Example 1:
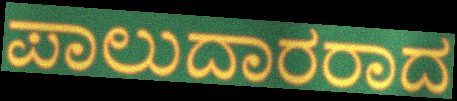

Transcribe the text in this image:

ಪಾಲುದಾರರಾದ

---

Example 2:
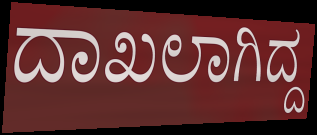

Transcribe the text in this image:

ದಾಖಲಾಗಿದ್ದ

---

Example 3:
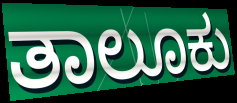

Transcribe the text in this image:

ತಾಲೂಕು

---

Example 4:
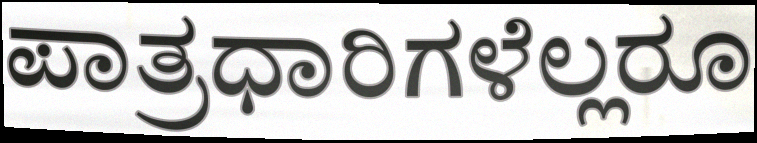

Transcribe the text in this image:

ಪಾತ್ರಧಾರಿಗಳೆಲ್ಲರೂ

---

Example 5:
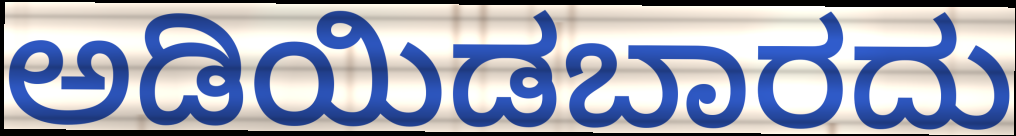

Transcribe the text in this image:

ಅಡಿಯಿಡಬಾರದು